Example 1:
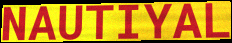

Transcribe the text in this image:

NAUTIYAL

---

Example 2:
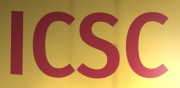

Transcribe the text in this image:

ICSC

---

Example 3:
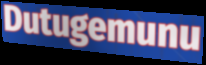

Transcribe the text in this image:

Dutugemunu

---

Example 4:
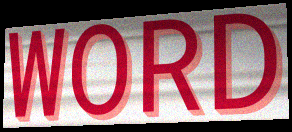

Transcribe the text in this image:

WORD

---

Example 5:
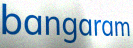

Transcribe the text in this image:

bangaram